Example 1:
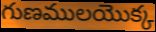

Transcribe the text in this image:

గుణములయొక్క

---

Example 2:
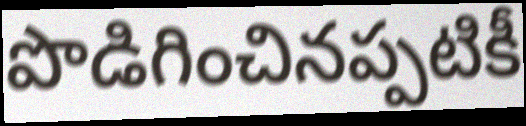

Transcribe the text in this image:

పొడిగించినప్పటికీ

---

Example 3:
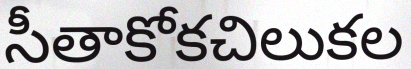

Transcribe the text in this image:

సీతాకోకచిలుకల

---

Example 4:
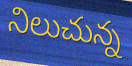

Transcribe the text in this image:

నిలుచున్న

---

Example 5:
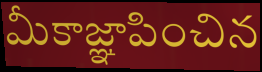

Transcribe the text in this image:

మీకాజ్ఞాపించిన